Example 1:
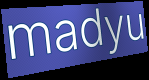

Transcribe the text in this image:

madyu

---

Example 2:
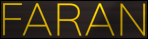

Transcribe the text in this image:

FARAN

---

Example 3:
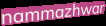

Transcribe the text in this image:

nammazhwar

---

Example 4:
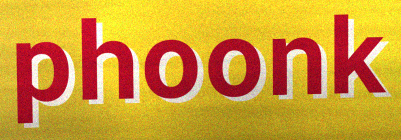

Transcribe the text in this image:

phoonk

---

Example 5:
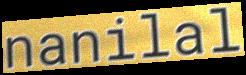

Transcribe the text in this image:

nanilal